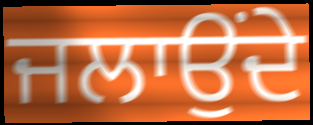
ਜਲਾਉਂਦੇ